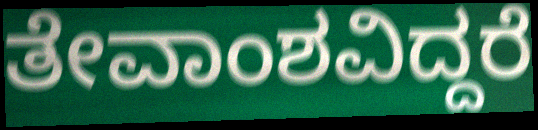
ತೇವಾಂಶವಿದ್ದರೆ